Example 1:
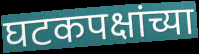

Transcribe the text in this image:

घटकपक्षांच्या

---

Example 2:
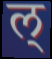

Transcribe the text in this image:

ल्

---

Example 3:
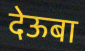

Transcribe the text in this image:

देऊबा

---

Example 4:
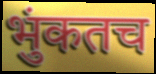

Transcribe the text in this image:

भुंकतच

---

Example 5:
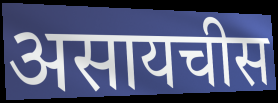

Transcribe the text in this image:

असायचीस